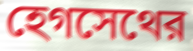
হেগসেথের